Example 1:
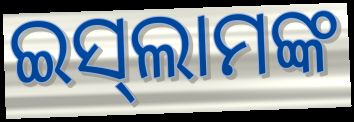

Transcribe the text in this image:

ଇସ୍‌ଲାମଙ୍କ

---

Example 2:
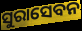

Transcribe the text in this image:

ସୁରାସେବନ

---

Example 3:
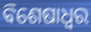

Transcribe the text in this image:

ବିଶେଷାଧ୍ଵର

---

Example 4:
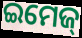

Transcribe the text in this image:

ଇମେଜ୍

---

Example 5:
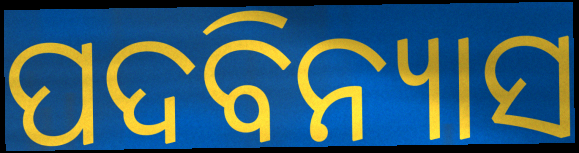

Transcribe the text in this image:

ପଦବିନ୍ୟାସ